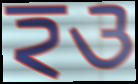
হও